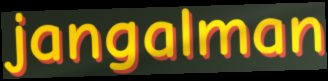
jangalman